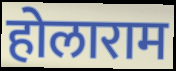
होलाराम